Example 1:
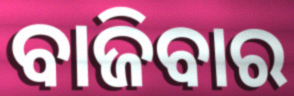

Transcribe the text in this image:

ବାଜିବାର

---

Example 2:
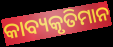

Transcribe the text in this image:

କାବ୍ୟକୃତିମାନ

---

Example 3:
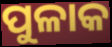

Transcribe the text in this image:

ପୁଳାକ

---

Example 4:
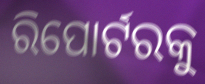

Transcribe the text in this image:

ରିପୋର୍ଟରକୁ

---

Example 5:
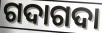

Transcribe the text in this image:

ଗଦାଗଦା